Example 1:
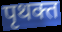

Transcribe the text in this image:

पृथक्त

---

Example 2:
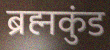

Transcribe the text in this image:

ब्रह्मकुंड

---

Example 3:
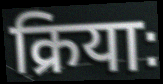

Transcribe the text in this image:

क्रियाः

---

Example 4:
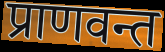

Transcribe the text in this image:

प्राणवन्त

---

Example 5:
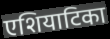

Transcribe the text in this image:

एशियाटिका